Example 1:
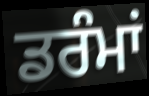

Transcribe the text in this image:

ਡਰੰਮਾਂ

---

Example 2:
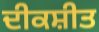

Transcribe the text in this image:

ਦੀਕਸ਼ੀਤ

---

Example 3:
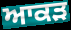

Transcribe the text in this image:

ਆਕੜ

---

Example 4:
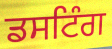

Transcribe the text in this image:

ਡਸਟਿੰਗ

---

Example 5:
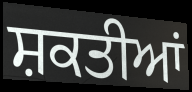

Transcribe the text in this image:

ਸ਼ਕਤੀਆਂ